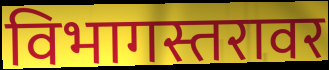
विभागस्तरावर